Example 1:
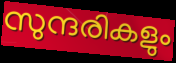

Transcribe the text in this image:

സുന്ദരികളും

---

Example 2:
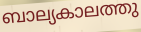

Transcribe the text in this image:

ബാല്യകാലത്തു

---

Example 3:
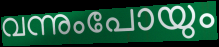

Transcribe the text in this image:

വന്നുംപോയും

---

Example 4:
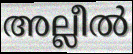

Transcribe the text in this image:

അല്ലീൽ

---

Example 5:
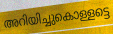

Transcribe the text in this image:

അറിയിച്ചുകൊള്ളട്ടെ